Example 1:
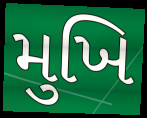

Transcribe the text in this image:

મુખિ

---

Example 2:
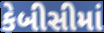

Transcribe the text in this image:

કેબીસીમાં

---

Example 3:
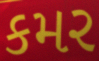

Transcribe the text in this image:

કમર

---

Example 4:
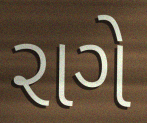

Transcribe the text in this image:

રાગે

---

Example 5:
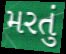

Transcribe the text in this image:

મરતું